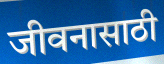
जीवनासाठी